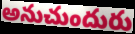
అనుచుందురు